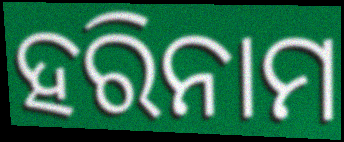
ହରିନାମ